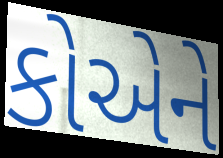
કોએને